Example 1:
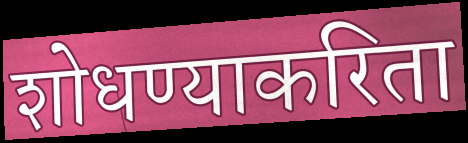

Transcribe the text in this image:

शोधण्याकरिता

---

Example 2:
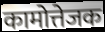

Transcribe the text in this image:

कामोत्तेजक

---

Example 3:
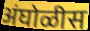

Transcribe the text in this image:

अंघोळीस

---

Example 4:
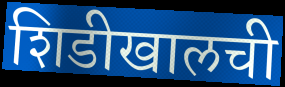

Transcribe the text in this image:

शिडीखालची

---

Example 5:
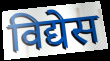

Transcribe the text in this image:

विद्येस